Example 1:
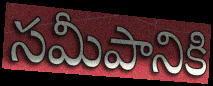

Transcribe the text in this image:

సమీపానికి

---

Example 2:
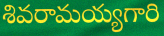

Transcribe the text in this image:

శివరామయ్యగారి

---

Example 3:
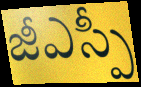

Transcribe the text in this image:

జీఎస్పీ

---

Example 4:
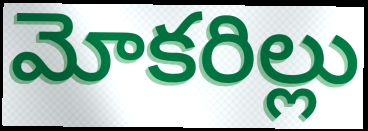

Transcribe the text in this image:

మోకరిల్లు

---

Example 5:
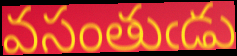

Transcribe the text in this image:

వసంతుఁడు